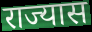
राज्यास